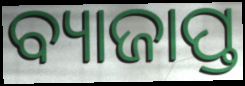
ବ୍ୟାଜାପ୍ତ